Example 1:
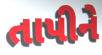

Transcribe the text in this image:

તાપીને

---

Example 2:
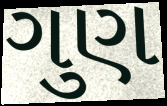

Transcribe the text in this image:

ગુણ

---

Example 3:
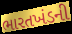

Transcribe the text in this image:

ભારતખંડની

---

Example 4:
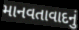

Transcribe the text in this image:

માનવતાવાદનું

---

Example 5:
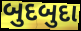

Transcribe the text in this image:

બુદબુદા